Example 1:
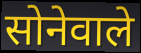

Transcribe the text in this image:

सोनेवाले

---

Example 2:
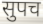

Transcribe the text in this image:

सुपच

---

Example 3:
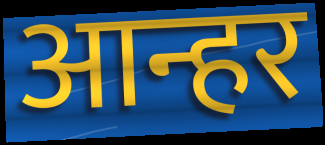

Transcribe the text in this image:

आन्हर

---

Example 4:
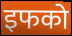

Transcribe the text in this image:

इफको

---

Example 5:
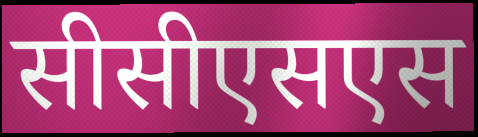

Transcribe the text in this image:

सीसीएसएस